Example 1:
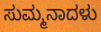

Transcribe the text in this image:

ಸುಮ್ಮನಾದಳು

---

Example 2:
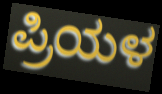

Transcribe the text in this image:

ಪ್ರಿಯಳ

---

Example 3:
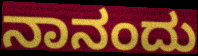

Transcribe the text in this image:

ನಾನಂದು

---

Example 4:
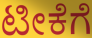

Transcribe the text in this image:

ಟೀಕೆಗೆ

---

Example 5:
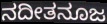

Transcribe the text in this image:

ನದೀತನೂಜ